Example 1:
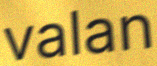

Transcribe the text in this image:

valan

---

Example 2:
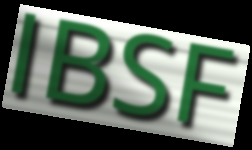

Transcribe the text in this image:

IBSF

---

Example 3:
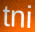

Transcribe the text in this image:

tni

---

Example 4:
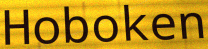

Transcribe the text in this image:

Hoboken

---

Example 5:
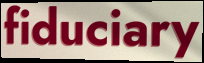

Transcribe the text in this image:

fiduciary